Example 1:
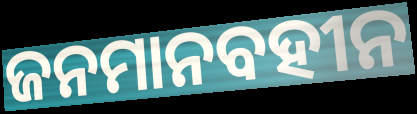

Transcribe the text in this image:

ଜନମାନବହୀନ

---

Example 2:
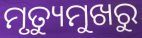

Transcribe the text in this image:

ମୃତ୍ୟୁମୁଖରୁ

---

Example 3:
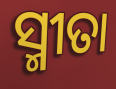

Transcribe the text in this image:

ସ୍ମୀତା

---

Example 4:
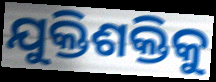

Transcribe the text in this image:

ଯୁକ୍ତିଶକ୍ତିକୁ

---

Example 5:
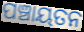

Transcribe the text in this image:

ପଞ୍ଚାୟତନ